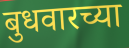
बुधवारच्या